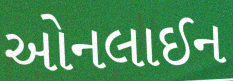
ઓનલાઈન